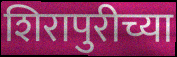
शिरापुरीच्या